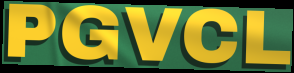
PGVCL